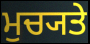
ਮੁਚ੍ਯਤੇ